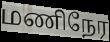
மணிநேர